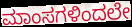
ಮಾಂಸಗಳಿಂದಲೇ